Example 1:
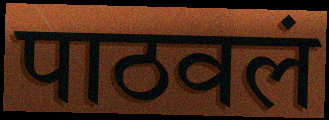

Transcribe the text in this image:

पाठवलं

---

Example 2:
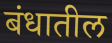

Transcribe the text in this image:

बंधातील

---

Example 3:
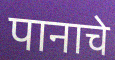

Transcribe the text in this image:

पानाचे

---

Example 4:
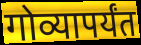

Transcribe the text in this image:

गोव्यापर्यंत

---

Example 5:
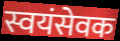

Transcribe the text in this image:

स्वयंसेवक